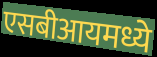
एसबीआयमध्ये